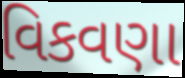
વિકવણા